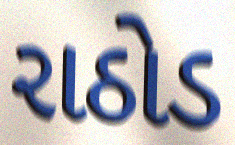
રાઠોડ